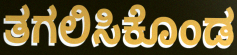
ತಗಲಿಸಿಕೊಂಡ